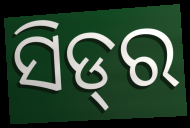
ସିଡ୍‌ର